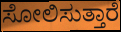
ಸೋಲಿಸುತ್ತಾರೆ